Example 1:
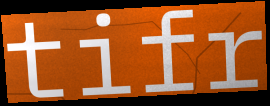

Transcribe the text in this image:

tifr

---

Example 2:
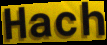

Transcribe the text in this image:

Hach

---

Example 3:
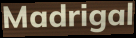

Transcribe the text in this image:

Madrigal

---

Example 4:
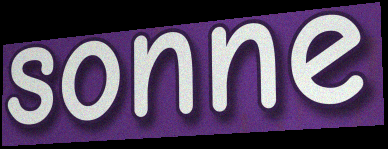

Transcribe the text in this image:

sonne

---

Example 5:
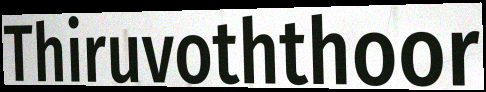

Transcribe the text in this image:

Thiruvoththoor